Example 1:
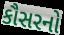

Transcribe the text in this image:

કૌસરનો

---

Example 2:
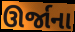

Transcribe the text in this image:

ઊર્જાના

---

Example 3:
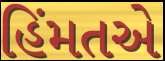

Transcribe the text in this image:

હિંમતએ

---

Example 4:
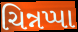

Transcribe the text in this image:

ચિન્નપ્પા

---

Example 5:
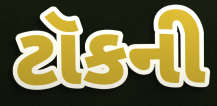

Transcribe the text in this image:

ટૉકની